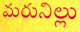
మరునిల్లు